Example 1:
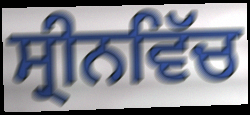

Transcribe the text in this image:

ਸ੍ਰੀਨਵਿੱਚ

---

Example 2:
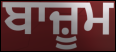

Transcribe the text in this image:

ਬਾਜ਼ੂਮ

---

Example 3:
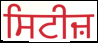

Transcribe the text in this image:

ਸਿਟੀਜ਼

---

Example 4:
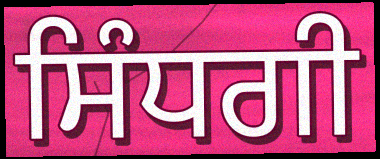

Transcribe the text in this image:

ਸਿੰਧਗੀ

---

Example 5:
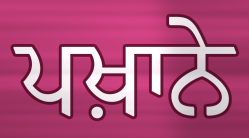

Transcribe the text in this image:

ਪਖ਼ਾਨੇ